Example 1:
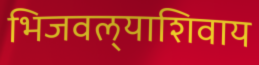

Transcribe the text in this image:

भिजवल्याशिवाय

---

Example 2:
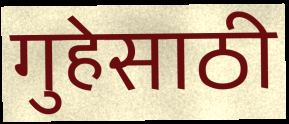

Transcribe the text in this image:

गुहेसाठी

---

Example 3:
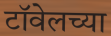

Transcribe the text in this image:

टॉवेलच्या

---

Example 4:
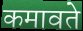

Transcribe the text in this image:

कमावते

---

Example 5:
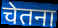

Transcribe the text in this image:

चेतना